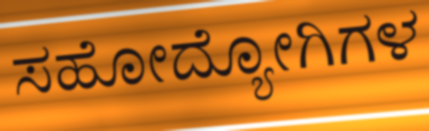
ಸಹೋದ್ಯೋಗಿಗಳ